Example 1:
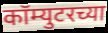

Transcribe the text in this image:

कॉम्युटरच्या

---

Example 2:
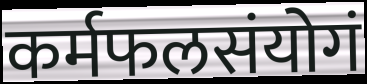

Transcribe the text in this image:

कर्मफलसंयोगं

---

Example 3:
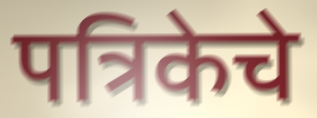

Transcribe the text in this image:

पत्रिकेचे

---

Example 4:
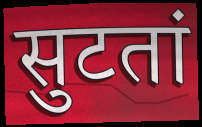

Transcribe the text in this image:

सुटतां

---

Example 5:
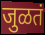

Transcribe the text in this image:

जुळतं